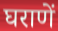
घराणें